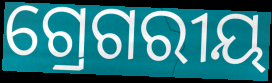
ଗ୍ରେଗରୀୟ